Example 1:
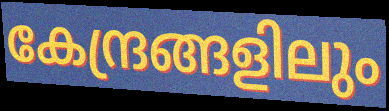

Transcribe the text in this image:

കേന്ദ്രങ്ങളിലും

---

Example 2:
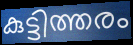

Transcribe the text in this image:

കുട്ടിത്തരം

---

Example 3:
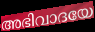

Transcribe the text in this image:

അഭിവാദയേ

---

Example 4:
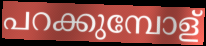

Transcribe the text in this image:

പറക്കുമ്പോള്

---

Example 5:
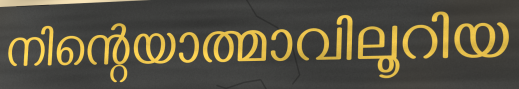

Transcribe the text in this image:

നിന്റെയാത്മാവിലൂറിയ